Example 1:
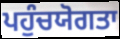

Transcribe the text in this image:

ਪਹੁੰਚਯੋਗਤਾ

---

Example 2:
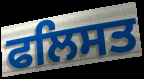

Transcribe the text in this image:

ਫਲਿਸਤ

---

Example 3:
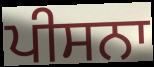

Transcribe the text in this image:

ਪੀਸਨਾ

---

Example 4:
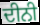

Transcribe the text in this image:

ਦੀਨੀ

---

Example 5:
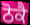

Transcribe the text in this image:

ਠੋਕੈ